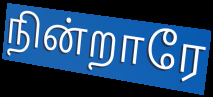
நின்றாரே